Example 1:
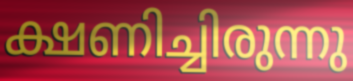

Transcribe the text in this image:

ക്ഷണിച്ചിരുന്നു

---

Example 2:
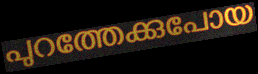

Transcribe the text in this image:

പുറത്തേക്കുപോയ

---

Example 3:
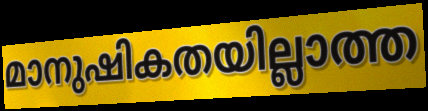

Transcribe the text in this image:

മാനുഷികതയില്ലാത്ത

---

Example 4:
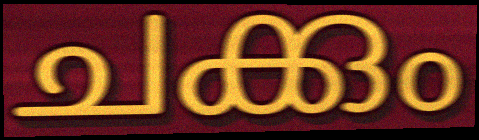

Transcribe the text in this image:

ചക്കും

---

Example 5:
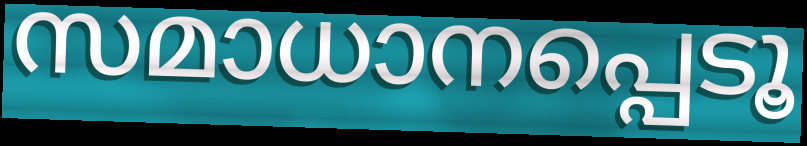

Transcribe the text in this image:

സമാധാനപ്പെടൂ